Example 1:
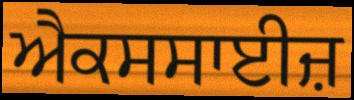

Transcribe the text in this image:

ਐਕਸਸਾਈਜ਼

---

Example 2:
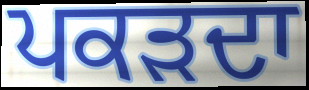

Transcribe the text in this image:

ਪਕੜਦਾ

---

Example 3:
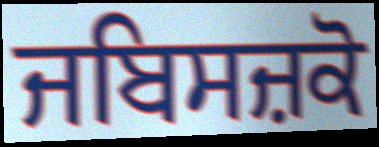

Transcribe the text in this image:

ਜਬਿਸਜ਼ਕੋ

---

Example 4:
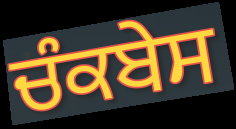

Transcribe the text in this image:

ਚੰਕਬੇਸ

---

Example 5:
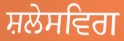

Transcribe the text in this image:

ਸ਼ਲੇਸਵਿਗ